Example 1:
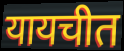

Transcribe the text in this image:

यायचीत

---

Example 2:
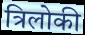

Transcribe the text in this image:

त्रिलोकी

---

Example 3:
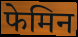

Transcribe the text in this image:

फेमिन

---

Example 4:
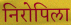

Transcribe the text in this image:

निरोपिला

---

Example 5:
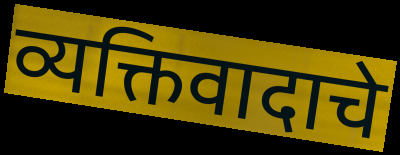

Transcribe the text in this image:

व्यक्तिवादाचे